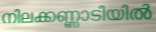
നിലക്കണ്ണാടിയിൽ